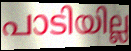
പാടിയില്ല